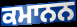
ਕਮਾਨਨ